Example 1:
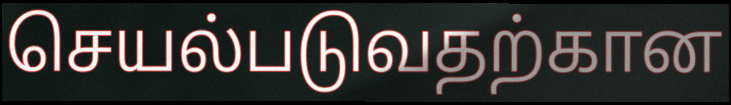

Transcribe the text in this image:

செயல்படுவதற்கான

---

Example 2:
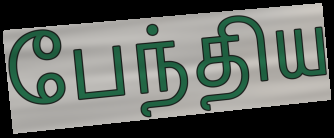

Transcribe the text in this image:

பேந்திய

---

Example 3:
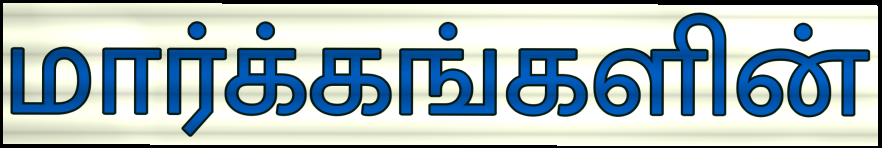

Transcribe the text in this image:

மார்க்கங்களின்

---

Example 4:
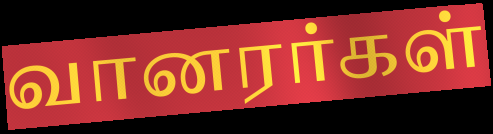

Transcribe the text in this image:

வானரர்கள்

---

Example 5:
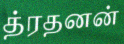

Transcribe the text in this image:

த்ரதனன்